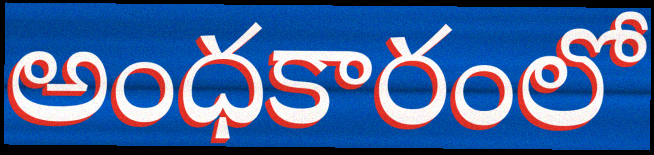
అంధకారంలో